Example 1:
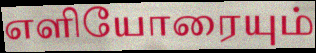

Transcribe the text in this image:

எளியோரையும்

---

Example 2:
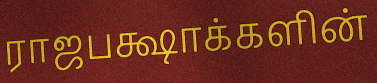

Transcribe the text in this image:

ராஜபக்ஷாக்களின்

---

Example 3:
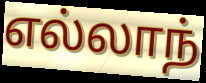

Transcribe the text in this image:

எல்லாந்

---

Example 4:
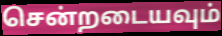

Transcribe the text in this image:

சென்றடையவும்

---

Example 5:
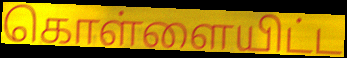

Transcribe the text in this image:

கொள்ளையிட்ட